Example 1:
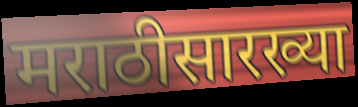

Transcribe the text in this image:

मराठीसारख्या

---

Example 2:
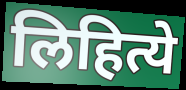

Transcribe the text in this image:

लिहित्ये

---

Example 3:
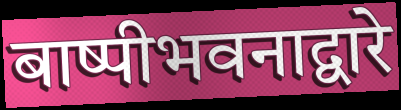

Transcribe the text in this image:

बाष्पीभवनाद्वारे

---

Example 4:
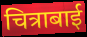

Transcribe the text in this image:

चित्राबाई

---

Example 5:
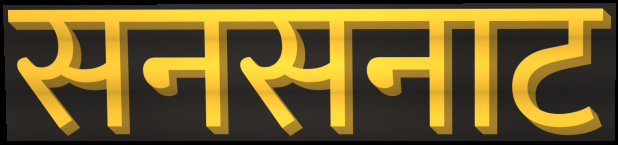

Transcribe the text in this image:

सनसनाट